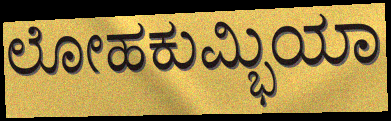
ಲೋಹಕುಮ್ಭಿಯಾ